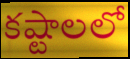
కష్టాలలో